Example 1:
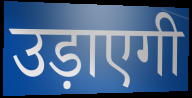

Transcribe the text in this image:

उड़ाएगी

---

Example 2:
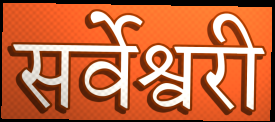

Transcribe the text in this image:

सर्वेश्वरी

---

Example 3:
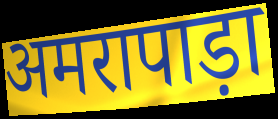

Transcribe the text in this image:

अमरापाड़ा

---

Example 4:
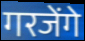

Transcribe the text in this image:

गरजेंगे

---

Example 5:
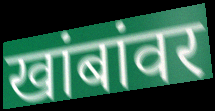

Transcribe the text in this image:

खांबांवर